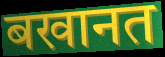
बखानत